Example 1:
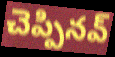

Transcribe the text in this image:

చెప్పినవ్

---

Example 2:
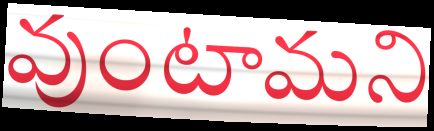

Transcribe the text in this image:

వుంటామని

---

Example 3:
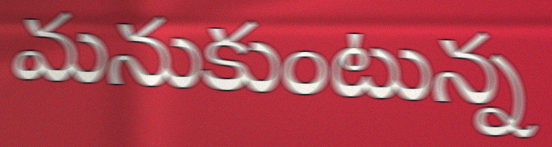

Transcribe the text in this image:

మనుకుంటున్న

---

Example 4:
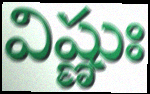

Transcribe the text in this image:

విష్ణుః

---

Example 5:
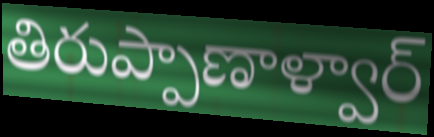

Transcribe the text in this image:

తిరుప్పాణాళ్వార్